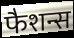
फैशन्स